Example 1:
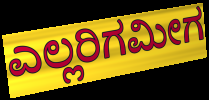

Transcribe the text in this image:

ಎಲ್ಲರಿಗಮೀಗ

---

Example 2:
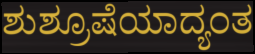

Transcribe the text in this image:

ಶುಶ್ರೂಷೆಯಾದ್ಯಂತ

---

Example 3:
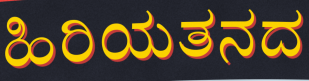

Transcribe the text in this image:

ಹಿರಿಯತನದ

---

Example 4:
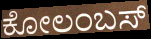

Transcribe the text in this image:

ಕೋಲಂಬಸ್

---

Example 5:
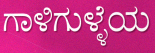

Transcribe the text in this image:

ಗಾಳಿಗುಳ್ಳೆಯ